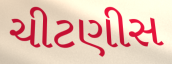
ચીટણીસ